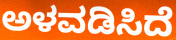
ಅಳವಡಿಸಿದೆ